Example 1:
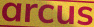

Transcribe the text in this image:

arcus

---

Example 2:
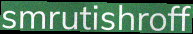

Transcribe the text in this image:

smrutishroff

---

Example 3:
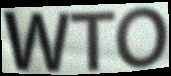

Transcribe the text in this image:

WTO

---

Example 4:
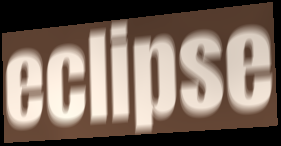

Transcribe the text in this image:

eclipse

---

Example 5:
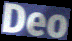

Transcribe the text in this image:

Deo